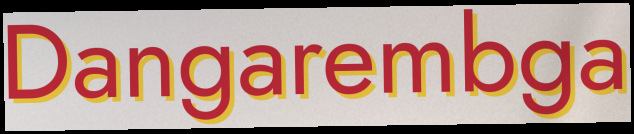
Dangarembga